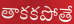
తాకకపోతే